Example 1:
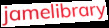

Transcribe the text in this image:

jamelibrary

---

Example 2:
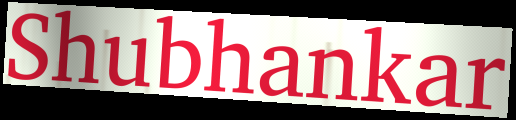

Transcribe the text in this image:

Shubhankar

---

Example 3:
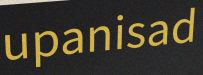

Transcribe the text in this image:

upanisad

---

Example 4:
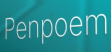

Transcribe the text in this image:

Penpoem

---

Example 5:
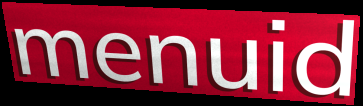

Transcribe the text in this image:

menuid